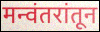
मन्वंतरांतून